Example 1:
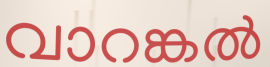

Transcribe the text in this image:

വാറങ്കൽ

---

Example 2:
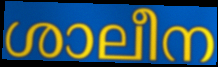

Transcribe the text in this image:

ശാലീന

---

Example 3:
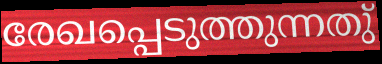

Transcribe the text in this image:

രേഖപ്പെടുത്തുന്നതു്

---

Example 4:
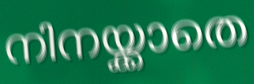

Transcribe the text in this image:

നിനയ്ക്കാതെ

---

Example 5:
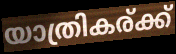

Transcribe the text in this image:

യാത്രികര്ക്ക്